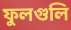
ফুলগুলি